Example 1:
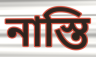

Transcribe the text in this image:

নাস্তি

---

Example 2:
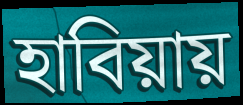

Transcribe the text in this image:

হাবিয়ায়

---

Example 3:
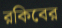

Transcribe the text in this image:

রকিবের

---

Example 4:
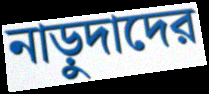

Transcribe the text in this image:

নাড়ুদাদের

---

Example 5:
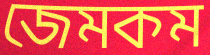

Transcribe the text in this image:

জেমকম